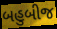
બહુબીજ